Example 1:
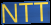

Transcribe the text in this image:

NTT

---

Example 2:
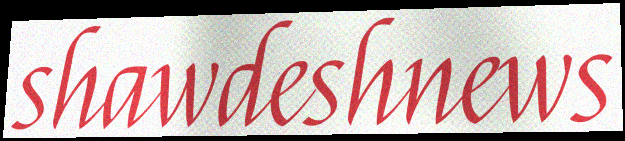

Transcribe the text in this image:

shawdeshnews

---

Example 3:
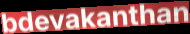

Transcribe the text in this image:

bdevakanthan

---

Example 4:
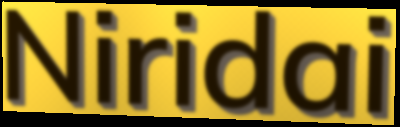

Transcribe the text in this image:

Niridai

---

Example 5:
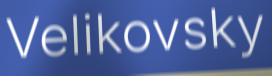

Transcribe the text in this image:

Velikovsky